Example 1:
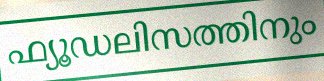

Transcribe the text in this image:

ഫ്യൂഡലിസത്തിനും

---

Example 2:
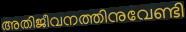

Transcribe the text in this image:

അതിജീവനത്തിനുവേണ്ടി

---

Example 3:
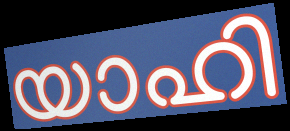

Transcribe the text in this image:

യാഹി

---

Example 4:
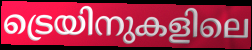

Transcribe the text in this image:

ട്രെയിനുകളിലെ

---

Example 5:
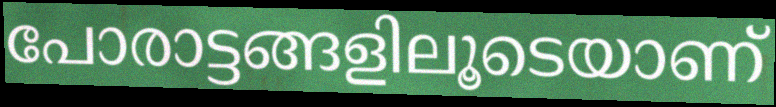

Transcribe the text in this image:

പോരാട്ടങ്ങളിലൂടെയാണ്